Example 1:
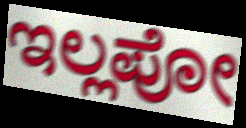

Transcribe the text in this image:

ಇಲ್ಲಪೋ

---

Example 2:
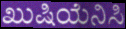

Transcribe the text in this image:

ಖುಷಿಯೆನಿಸಿ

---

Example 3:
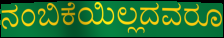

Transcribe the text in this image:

ನಂಬಿಕೆಯಿಲ್ಲದವರೂ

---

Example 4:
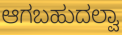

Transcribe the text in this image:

ಆಗಬಹುದಲ್ವಾ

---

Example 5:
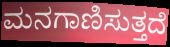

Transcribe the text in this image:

ಮನಗಾಣಿಸುತ್ತದೆ